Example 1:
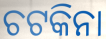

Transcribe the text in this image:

ଚଟକିନା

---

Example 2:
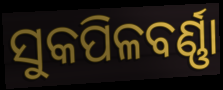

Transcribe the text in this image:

ସୁକପିଳବର୍ଣ୍ଣା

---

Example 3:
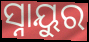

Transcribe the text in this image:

ସ୍ନାୟୁର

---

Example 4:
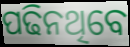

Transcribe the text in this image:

ପଢିନଥିବେ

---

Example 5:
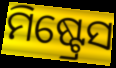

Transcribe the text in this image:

ମିଷ୍ଟ୍ରେସ